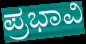
ಪ್ರಭಾವಿ